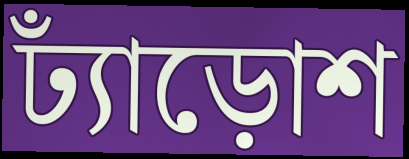
ঢ্যাঁড়োশ